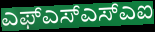
ಎಫ್ಎಸ್ಎಸ್ಎಐ